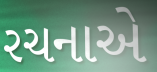
રચનાએ